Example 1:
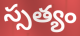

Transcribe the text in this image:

స్సత్యం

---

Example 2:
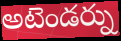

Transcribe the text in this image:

అటెండర్ను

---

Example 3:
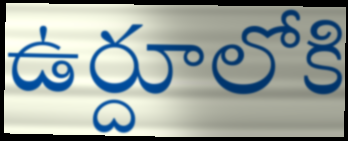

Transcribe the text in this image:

ఉర్దూలోకి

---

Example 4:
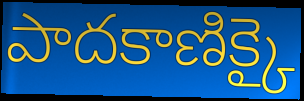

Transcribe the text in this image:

పాదకాణిక్కై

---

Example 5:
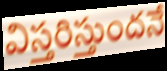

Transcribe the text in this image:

విస్తరిస్తుందనే